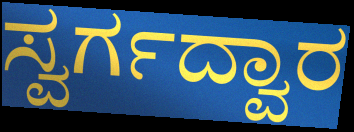
ಸ್ವರ್ಗದ್ವಾರ